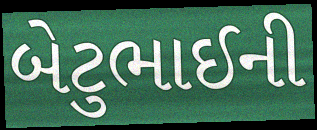
બેટુભાઈની